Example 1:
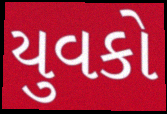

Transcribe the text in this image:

યુવકો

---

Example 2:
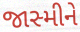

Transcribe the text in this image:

જાસ્મીને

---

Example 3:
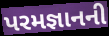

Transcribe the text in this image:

પરમજ્ઞાનની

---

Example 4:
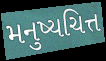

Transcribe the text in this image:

મનુષ્યચિત્ત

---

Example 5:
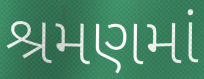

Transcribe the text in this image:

શ્રમણમાં